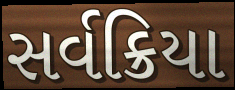
સર્વક્રિયા